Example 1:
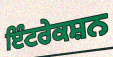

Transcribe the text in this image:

ਇੰਟਰੇਕਸ਼ਨ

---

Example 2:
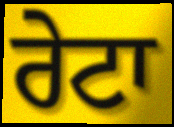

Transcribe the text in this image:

ਰੇਟਾ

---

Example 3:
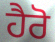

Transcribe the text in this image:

ਹੈਰੋ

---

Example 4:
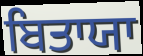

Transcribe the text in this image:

ਬਿਤਾਯਾ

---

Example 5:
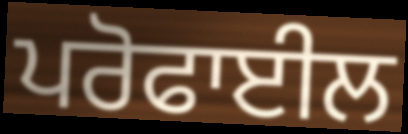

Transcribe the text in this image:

ਪਰੋਫਾਈਲ